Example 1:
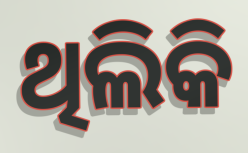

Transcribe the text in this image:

ଥିଲିକି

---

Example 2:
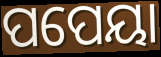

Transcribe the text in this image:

ପପେୟା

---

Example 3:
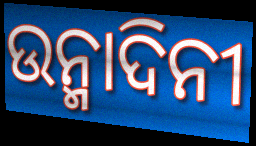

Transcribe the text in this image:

ଉନ୍ମାଦିନୀ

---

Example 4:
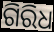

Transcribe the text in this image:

ଗିରିଧ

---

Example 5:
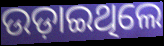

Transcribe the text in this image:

ଉଡ଼ାଇଥିଲେ